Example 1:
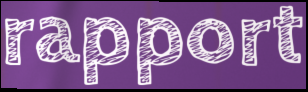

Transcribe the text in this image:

rapport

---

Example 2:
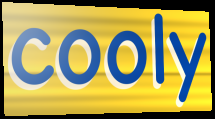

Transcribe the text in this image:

cooly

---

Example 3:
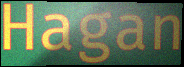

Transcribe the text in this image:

Hagan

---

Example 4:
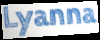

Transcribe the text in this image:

Lyanna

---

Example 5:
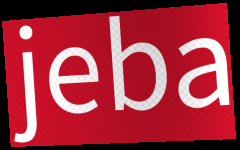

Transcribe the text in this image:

jeba